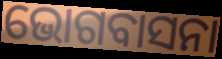
ଭୋଗବାସନା